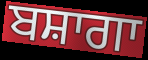
ਬਸ਼ਾਗਾ